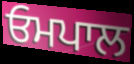
ਓਮਪਾਲ